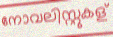
നോവലിസ്റ്റുകള്